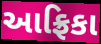
આફ્રિકા